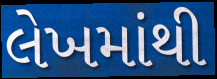
લેખમાંથી